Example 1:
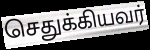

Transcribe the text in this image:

செதுக்கியவர்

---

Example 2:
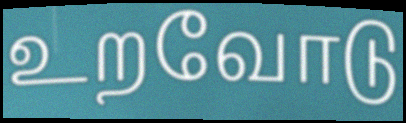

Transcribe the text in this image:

உறவோடு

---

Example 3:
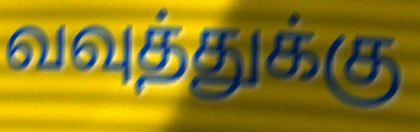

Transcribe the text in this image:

வவுத்துக்கு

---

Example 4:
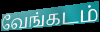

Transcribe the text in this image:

வேங்கடம்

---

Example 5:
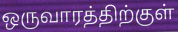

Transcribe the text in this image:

ஒருவாரத்திற்குள்